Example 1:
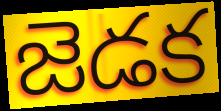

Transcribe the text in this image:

జెడక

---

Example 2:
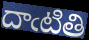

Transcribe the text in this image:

దాఁటితి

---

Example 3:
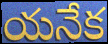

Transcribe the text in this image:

యనేక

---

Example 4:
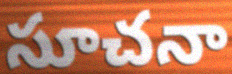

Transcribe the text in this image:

సూచనా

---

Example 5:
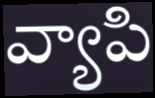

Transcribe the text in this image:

వ్యాపి